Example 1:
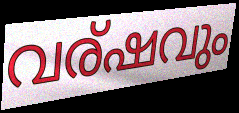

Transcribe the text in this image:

വര്ഷവും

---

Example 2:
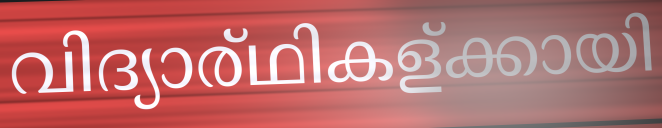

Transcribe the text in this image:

വിദ്യാര്ഥികള്ക്കായി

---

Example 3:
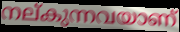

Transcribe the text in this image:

നല്കുന്നവയാണ്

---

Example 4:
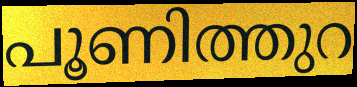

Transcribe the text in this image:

പൂണിത്തുറ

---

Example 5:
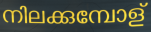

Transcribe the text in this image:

നിലക്കുമ്പോള്